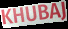
KHUBAJ